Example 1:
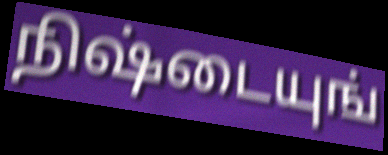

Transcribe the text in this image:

நிஷ்டையுங்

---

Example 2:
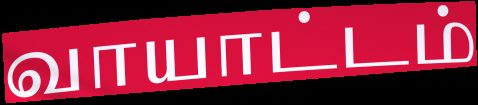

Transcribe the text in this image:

வாயாட்டம்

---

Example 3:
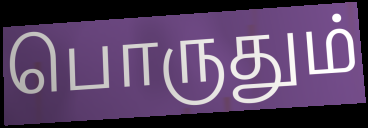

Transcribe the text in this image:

பொருதும்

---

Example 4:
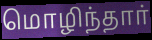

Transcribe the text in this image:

மொழிந்தார்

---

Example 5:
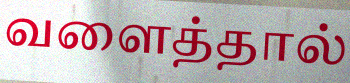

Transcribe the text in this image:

வளைத்தால்